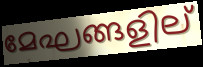
മേഘങ്ങളില്